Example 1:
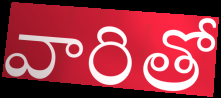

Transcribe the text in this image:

వారితో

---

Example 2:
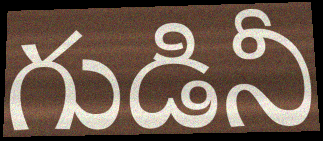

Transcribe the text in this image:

గుడినీ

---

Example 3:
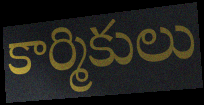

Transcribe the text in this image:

కార్మికులు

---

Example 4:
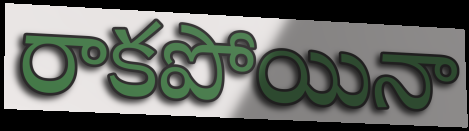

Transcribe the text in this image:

రాకపోయినా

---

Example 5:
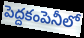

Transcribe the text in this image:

పెద్దకంపెనీలో